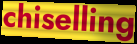
chiselling